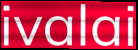
ivalai